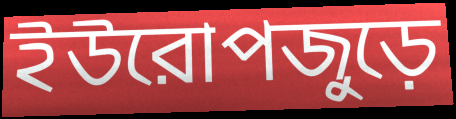
ইউরোপজুড়ে